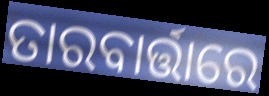
ତାରବାର୍ତ୍ତାରେ